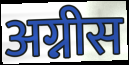
अग्नीस